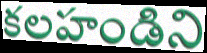
కలహండిని